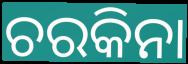
ଚରକିନା